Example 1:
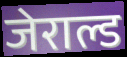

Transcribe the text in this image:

जेराल्ड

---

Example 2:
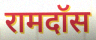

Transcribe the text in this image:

रामदॉस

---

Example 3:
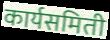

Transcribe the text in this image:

कार्यसमिती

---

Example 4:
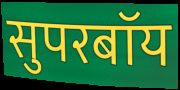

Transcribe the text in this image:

सुपरबॉय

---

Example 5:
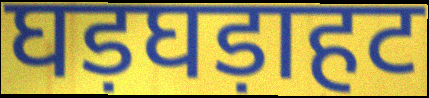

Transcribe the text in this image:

घड़घड़ाहट